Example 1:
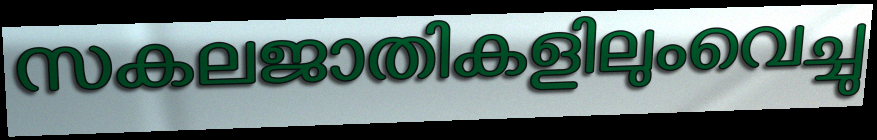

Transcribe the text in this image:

സകലജാതികളിലുംവെച്ചു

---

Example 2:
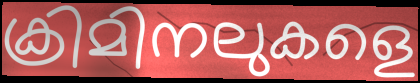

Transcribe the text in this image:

ക്രിമിനലുകളെ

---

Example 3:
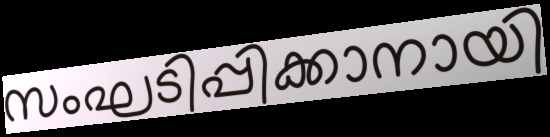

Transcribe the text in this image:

സംഘടിപ്പിക്കാനായി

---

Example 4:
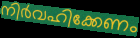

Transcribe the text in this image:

നിർവഹിക്കേണം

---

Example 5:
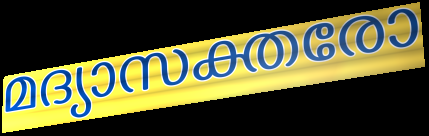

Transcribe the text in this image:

മദ്യാസക്തരോ